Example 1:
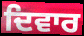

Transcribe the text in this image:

ਦਿਵਾਰ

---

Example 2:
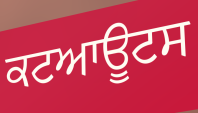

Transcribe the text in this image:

ਕਟਆਊਟਸ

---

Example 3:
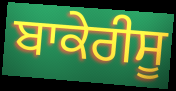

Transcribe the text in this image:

ਬਾਕੇਰੀਸੂ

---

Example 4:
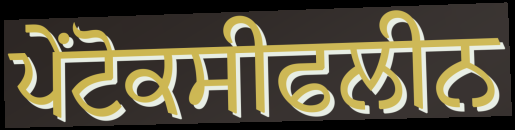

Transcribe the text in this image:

ਪੇਂਟੋਕਸੀਫਲੀਨ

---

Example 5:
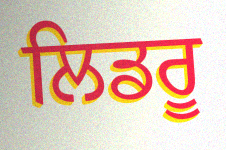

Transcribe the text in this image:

ਲਿਡਰੂ